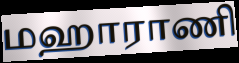
மஹாராணி